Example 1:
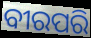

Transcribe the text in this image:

ବୀରପରି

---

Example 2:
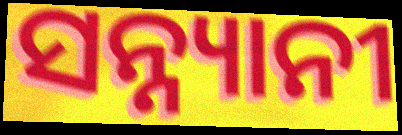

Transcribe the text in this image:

ସନ୍ନ୍ୟାନୀ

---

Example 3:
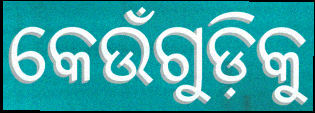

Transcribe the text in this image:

କେଉଁଗୁଡ଼ିକୁ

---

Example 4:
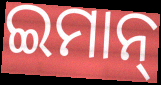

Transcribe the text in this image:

ଇମାନ୍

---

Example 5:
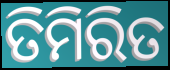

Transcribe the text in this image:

ତିମିରିତ